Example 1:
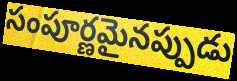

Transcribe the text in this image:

సంపూర్ణమైనప్పుడు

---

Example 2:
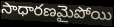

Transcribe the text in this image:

సాధారణమైపోయి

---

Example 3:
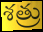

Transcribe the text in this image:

శత్రు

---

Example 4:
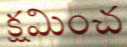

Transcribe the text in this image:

క్షమించ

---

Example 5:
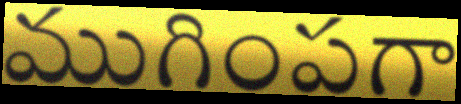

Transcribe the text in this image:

ముగింపగా